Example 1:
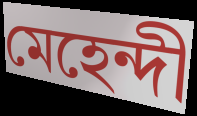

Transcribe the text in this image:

মেহেন্দী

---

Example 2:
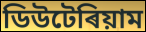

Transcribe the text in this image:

ডিউটেৰিয়াম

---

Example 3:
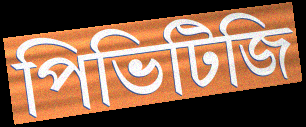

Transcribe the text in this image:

পিভিটিজি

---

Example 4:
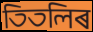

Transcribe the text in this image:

তিতলিৰ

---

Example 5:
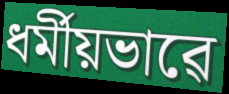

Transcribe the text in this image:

ধৰ্মীয়ভাৱে